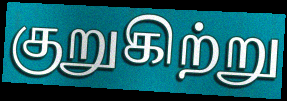
குறுகிற்று